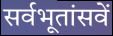
सर्वभूतांसवें